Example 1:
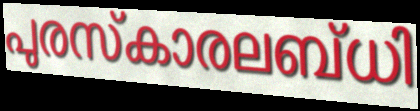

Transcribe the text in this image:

പുരസ്‌കാരലബ്ധി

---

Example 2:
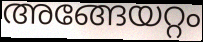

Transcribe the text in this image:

അങ്ങേയറ്റം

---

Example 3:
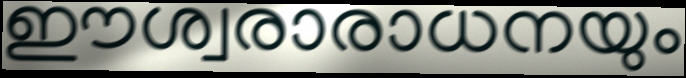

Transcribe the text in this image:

ഈശ്വരാരാധനയും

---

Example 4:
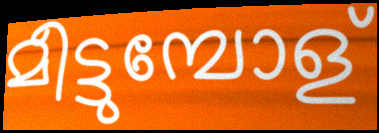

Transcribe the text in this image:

മീട്ടുമ്പോള്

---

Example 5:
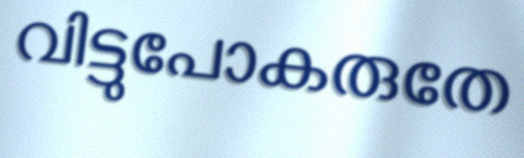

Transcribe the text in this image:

വിട്ടുപോകരുതേ